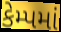
કેમ્પમાં